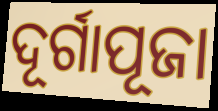
ଦୂର୍ଗାପୂଜା